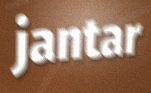
jantar